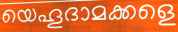
യെഹൂദാമക്കളെ